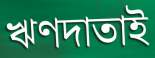
ঋণদাতাই